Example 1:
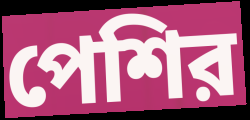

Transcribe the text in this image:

পেশির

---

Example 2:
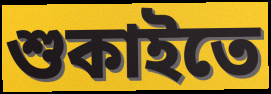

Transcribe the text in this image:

শুকাইতে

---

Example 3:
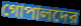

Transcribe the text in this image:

গোপালদের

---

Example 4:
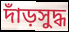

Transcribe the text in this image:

দাঁড়সুদ্ধ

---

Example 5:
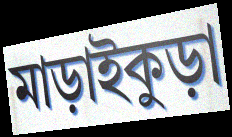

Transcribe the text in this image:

মাড়াইকুড়া